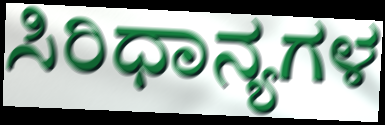
ಸಿರಿಧಾನ್ಯಗಳ